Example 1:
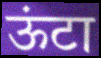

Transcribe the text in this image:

ऊंटा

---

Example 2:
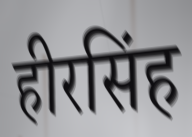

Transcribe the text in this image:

हीरसिंह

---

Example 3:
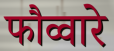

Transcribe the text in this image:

फौव्वारे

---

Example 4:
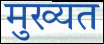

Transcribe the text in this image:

मुख्‍यत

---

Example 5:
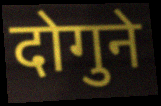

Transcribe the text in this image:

दोगुने